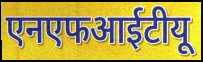
एनएफआईटीयू